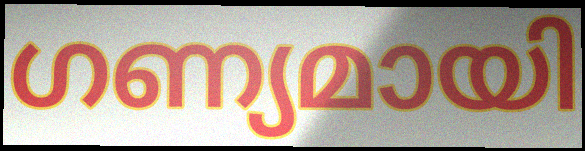
ഗണ്യമായി